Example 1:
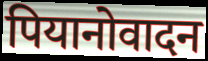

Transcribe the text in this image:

पियानोवादन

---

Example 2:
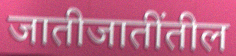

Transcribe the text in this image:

जातीजातींतील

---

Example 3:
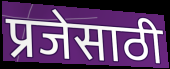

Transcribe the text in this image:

प्रजेसाठी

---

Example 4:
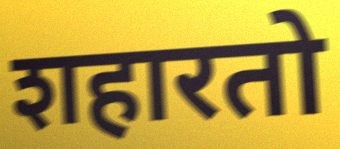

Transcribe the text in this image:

शहारतो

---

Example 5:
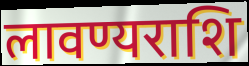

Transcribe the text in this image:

लावण्यराशि